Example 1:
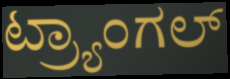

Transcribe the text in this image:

ಟ್ರ್ಯಾಂಗಲ್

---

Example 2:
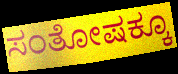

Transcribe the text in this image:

ಸಂತೋಷಕ್ಕೂ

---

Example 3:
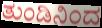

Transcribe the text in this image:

ತುಂಡಿನಿಂದ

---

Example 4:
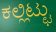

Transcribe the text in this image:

ಕಲ್ಲಿಟ್ಟು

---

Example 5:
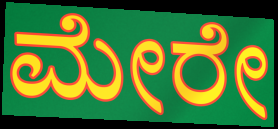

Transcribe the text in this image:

ಮೇರೇ